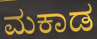
ಮಕಾಡ